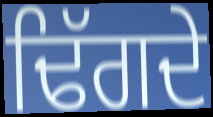
ਢਿੱਗਦੇ